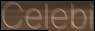
Celebi